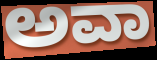
ಅವಾ